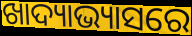
ଖାଦ୍ୟାଭ୍ୟାସରେ